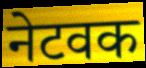
नेटवक